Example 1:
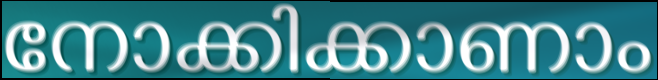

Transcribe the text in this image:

നോക്കിക്കാണാം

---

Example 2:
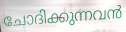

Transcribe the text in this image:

ചോദിക്കുന്നവൻ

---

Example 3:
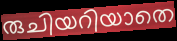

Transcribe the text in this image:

രുചിയറിയാതെ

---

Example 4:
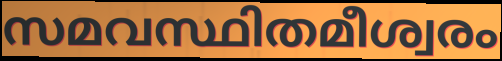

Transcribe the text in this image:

സമവസ്ഥിതമീശ്വരം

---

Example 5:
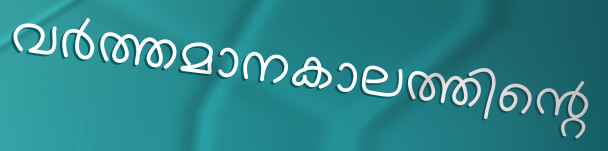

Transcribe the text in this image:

വർത്തമാനകാലത്തിന്റെ